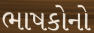
ભાષકોનો